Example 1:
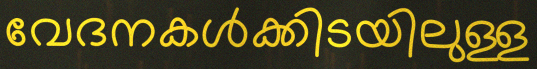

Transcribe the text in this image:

വേദനകൾക്കിടയിലുള്ള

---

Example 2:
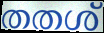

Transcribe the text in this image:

തതശ്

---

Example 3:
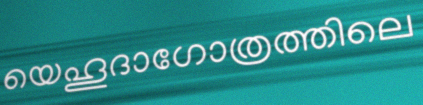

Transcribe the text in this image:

യെഹൂദാഗോത്രത്തിലെ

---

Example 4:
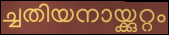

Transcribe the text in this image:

ച്ചതിയനായ്ക്കുറ്റം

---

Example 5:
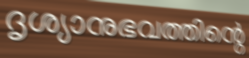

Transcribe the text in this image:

ദൃശ്യാനുഭവത്തിന്റെ